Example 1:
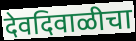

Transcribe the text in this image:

देवदिवाळीचा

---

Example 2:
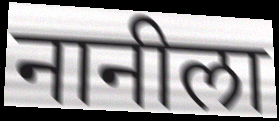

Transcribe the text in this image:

नानीला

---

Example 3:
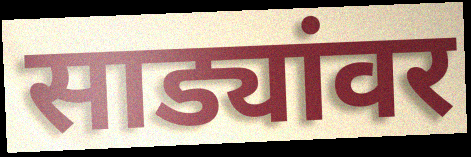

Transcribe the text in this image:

साड्यांवर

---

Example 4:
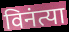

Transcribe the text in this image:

विनंत्या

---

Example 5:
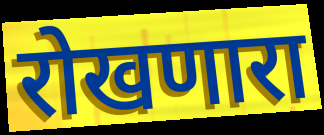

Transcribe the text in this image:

रोखणारा